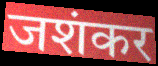
जशंकर